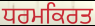
ਧਰਮਕਿਰਤ